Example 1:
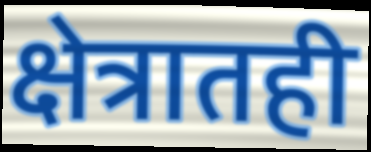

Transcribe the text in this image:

क्षेत्रातही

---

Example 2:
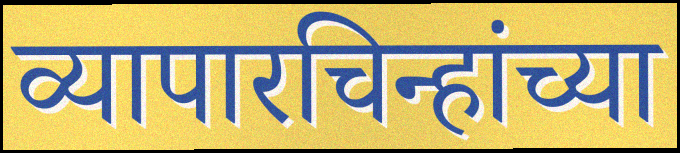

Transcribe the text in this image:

व्यापारचिन्हांच्या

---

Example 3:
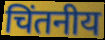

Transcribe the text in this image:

चिंतनीय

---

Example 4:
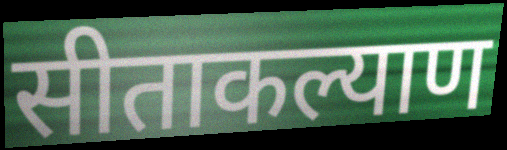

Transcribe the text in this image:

सीताकल्याण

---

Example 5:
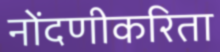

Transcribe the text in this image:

नोंदणीकरिता